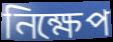
নিক্ষেপ